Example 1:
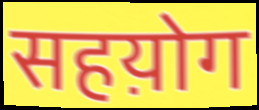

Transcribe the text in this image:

सहय़ोग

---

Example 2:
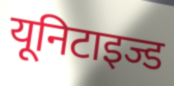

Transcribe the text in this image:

यूनिटाइज्ड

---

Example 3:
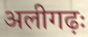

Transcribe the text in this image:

अलीगढ़ः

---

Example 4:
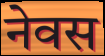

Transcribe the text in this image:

नेवस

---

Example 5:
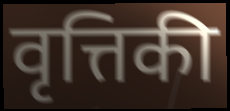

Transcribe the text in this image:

वृत्तिकी